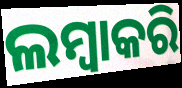
ଲମ୍ବାକରି